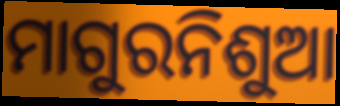
ମାଗୁରନିଶୁଆ